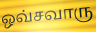
ஒவ்சவாரு